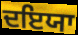
ਦਇਯਾ